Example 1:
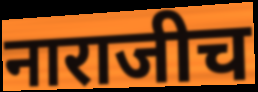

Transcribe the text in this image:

नाराजीच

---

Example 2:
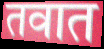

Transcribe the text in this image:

तवात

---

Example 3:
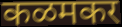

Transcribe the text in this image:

कळमकर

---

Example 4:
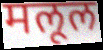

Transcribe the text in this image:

मलूल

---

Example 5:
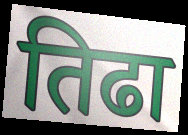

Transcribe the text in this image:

तिढा